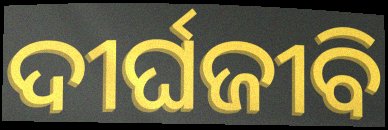
ଦୀର୍ଘଜୀବି